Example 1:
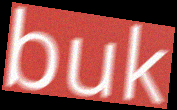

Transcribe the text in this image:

buk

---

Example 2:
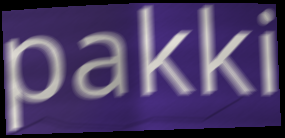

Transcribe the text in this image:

pakki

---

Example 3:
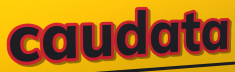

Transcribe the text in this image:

caudata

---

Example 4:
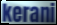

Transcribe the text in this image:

kerani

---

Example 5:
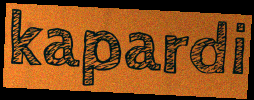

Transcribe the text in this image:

kapardi